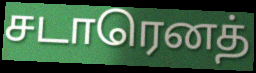
சடாரெனத்